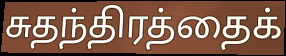
சுதந்திரத்தைக்